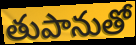
తుపానుతో